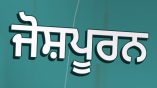
ਜੋਸ਼ਪੂਰਨ